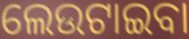
ଲେଉଟାଇବା